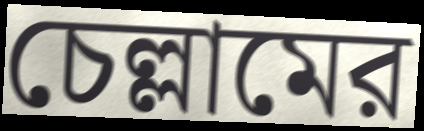
চেল্লামের